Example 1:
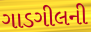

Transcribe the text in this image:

ગાડગીલની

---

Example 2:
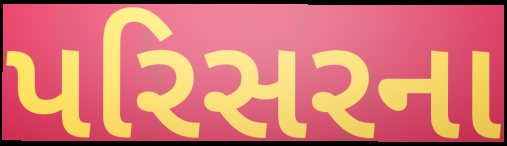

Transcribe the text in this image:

પરિસરના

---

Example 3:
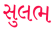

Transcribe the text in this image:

સુલભ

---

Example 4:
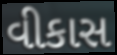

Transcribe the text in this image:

વીકાસ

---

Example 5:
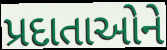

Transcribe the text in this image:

પ્રદાતાઓને